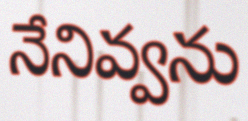
నేనివ్వను